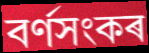
বৰ্ণসংকৰ